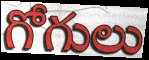
గోగులు